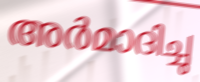
അർമാദിച്ചു